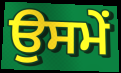
ਉਸਮੇਂ